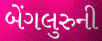
બેંગલુરુની